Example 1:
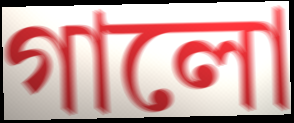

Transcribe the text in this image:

গালো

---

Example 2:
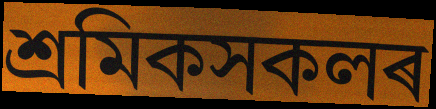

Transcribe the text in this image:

শ্ৰমিকসকলৰ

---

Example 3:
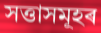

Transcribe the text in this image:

সত্তাসমূহৰ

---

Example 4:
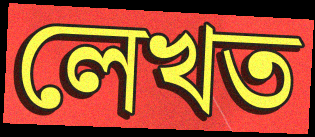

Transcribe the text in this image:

লেখত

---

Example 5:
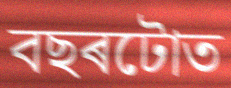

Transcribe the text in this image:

বছৰটোত